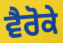
ਵੈਰੋਕੇ